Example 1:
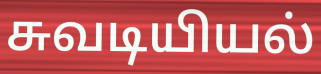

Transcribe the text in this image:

சுவடியியல்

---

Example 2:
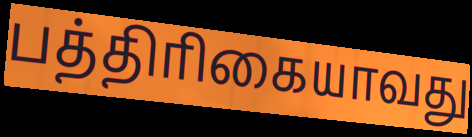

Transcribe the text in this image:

பத்திரிகையாவது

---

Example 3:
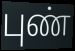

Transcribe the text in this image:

புண்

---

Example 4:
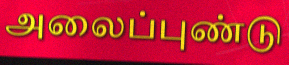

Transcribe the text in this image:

அலைப்புண்டு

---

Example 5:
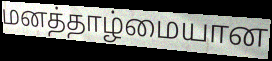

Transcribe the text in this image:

மனத்தாழ்மையான